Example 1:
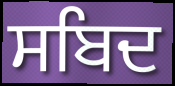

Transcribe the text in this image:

ਸਬਿਦ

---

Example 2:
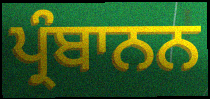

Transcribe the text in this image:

ਪ੍ਰੰਬਾਨਨ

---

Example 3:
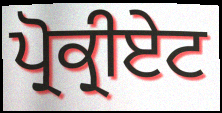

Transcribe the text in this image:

ਪ੍ਰੋਕ੍ਰੀਏਟ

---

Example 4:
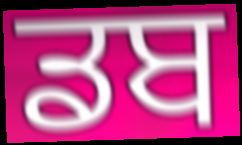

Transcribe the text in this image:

ਡਬ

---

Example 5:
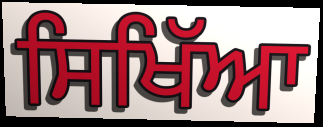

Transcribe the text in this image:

ਸਿਖਿੱਆ